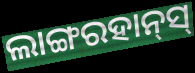
ଲାଙ୍ଗରହାନ୍‌ସ୍